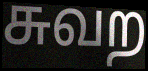
சுவற